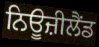
ਨਿਊਜ਼ੀਲੈਂਡ